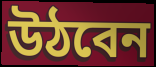
উঠবেন